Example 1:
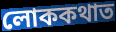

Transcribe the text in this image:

লোককথাত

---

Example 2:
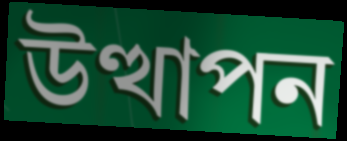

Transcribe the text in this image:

উত্থাপন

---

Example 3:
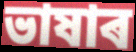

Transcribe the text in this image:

ভাষাৰ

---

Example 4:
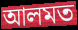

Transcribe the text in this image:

আলমত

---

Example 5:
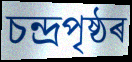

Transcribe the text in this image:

চন্দ্ৰপৃষ্ঠৰ